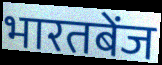
भारतबेंज